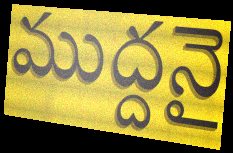
ముద్దనై